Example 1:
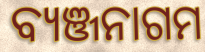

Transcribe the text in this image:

ବ୍ୟଞ୍ଜନାଗମ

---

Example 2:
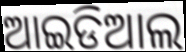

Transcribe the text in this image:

ଆଇଡିଆଲ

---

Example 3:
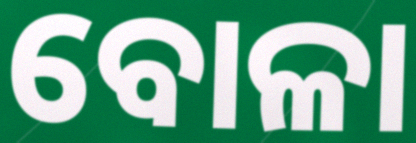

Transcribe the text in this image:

ବୋଳା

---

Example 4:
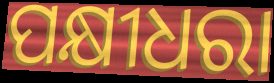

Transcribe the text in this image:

ପକ୍ଷୀଧରା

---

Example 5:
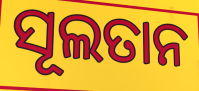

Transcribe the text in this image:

ସୂଲତାନ